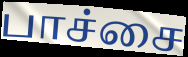
பாச்சை